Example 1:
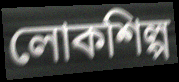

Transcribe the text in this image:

লোকশিল্প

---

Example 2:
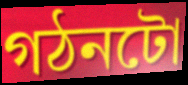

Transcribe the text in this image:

গঠনটো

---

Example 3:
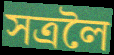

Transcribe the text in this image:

সত্ৰলৈ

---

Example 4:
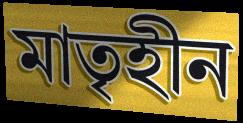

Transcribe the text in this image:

মাতৃহীন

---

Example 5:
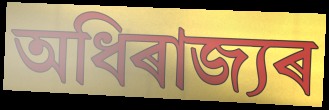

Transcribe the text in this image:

অধিৰাজ্যৰ